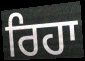
ਰਿਹਾ